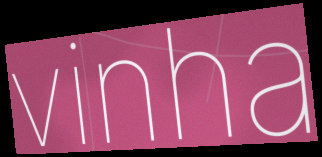
vinha